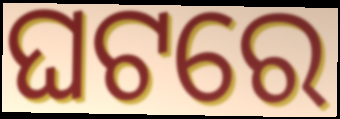
ଘଟରେ